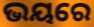
ଭୟରେ